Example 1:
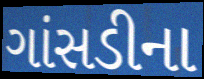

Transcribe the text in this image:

ગાંસડીના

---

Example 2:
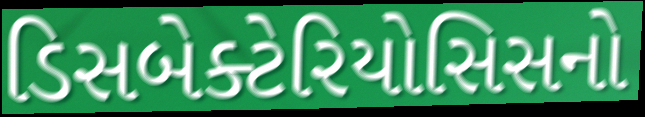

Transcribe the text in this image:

ડિસબેક્ટેરિયોસિસનો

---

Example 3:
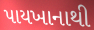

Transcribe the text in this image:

પાયખાનાથી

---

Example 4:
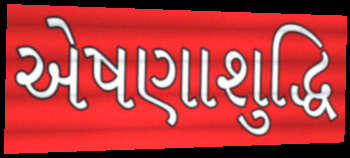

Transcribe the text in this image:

એષણાશુદ્ધિ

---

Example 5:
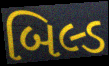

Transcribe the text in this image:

બિલ્ડ